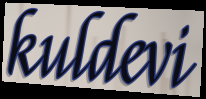
kuldevi